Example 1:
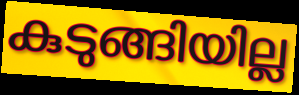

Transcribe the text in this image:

കുടുങ്ങിയില്ല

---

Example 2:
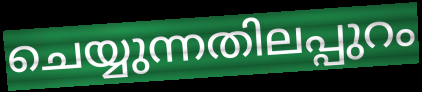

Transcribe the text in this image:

ചെയ്യുന്നതിലപ്പുറം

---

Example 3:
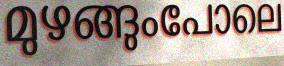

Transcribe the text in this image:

മുഴങ്ങുംപോലെ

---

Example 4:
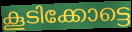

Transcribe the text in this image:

കൂടിക്കോട്ടെ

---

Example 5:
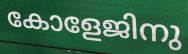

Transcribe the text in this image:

കോളേജിനു